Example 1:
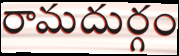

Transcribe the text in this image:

రామదుర్గం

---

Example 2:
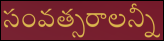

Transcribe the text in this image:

సంవత్సరాలన్నీ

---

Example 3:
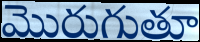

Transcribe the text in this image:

మొరుగుతూ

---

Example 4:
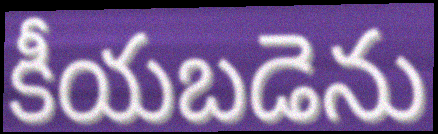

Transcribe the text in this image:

కీయబడెను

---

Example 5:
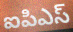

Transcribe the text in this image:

ఐపిఎస్